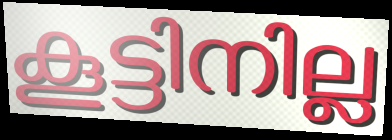
കൂട്ടിനില്ല